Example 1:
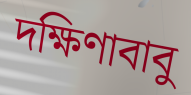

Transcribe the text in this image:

দক্ষিণাবাবু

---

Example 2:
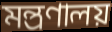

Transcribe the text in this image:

মন্ত্রণালয়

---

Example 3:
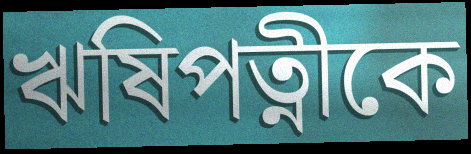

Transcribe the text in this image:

ঋষিপত্নীকে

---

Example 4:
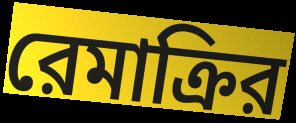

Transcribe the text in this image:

রেমাক্রির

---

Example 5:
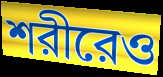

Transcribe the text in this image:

শরীরেও